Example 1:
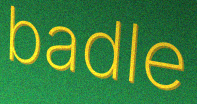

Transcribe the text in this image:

badle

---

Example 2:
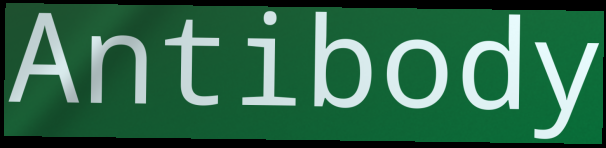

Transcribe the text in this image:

Antibody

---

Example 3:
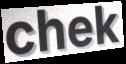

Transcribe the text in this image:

chek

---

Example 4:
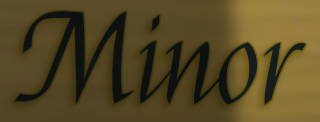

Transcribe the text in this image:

Minor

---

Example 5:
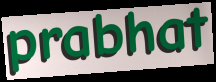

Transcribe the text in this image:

prabhat